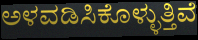
ಅಳವಡಿಸಿಕೊಳ್ಳುತ್ತಿವೆ